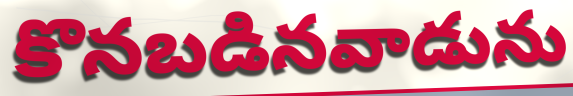
కొనబడినవాడును